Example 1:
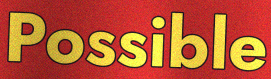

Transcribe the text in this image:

Possible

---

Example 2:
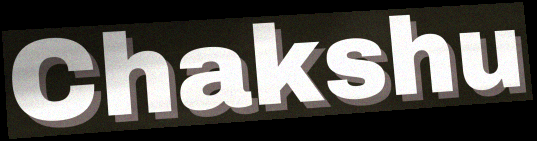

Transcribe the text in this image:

Chakshu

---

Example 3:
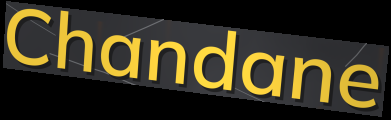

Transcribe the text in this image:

Chandane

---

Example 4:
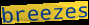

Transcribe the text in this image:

breezes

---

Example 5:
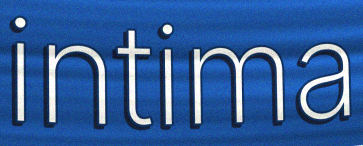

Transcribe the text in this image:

intima